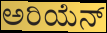
ಅರಿಯೆನ್